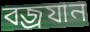
বজ্ৰযান